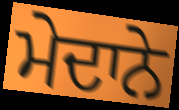
ਮੇਦਾਨੇ